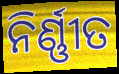
ନିର୍ଣ୍ଣୀତ